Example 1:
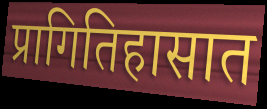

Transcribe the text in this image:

प्रागितिहासात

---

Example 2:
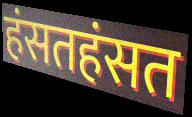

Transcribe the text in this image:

हंसतहंसत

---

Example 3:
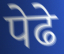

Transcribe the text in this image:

पेढे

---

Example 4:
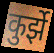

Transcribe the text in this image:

कुर्झे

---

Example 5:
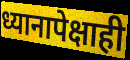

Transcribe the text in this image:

ध्यानापेक्षाही